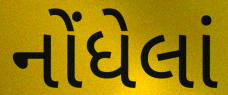
નોંધેલાં